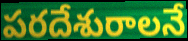
పరదేశురాలనే